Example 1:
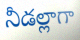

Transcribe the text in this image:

నీడల్లాగా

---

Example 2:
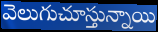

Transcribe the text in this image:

వెలుగుచూస్తున్నాయి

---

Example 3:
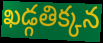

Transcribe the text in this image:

ఖడ్గతిక్కన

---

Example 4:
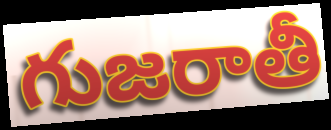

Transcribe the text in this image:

గుజరాతీ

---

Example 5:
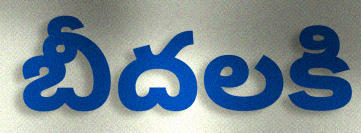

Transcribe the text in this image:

బీదలకి